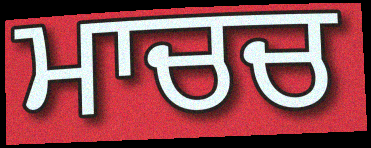
ਮਾਚਚ